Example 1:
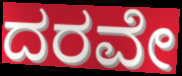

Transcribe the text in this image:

ದರವೇ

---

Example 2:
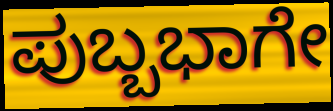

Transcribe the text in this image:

ಪುಬ್ಬಭಾಗೇ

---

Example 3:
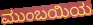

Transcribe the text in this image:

ಮುಂಬಯಿಯ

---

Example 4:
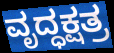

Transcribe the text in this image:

ವೃದ್ಧಕ್ಷತ್ರ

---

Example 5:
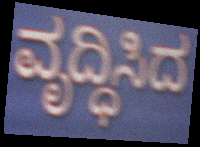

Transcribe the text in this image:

ವೃದ್ಧಿಸಿದ